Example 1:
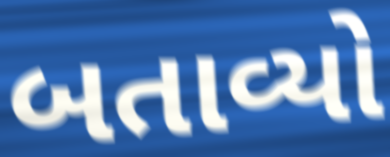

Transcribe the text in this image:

બતાવ્યો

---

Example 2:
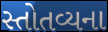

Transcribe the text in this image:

સ્તોતવ્યના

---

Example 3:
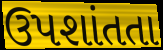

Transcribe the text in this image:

ઉપશાંતતા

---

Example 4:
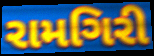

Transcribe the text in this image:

રામગિરી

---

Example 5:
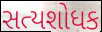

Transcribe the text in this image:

સત્યશોધક